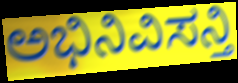
ಅಭಿನಿವಿಸನ್ತಿ